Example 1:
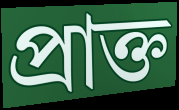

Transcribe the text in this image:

প্রাক্ত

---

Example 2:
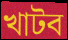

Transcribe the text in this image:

খাটব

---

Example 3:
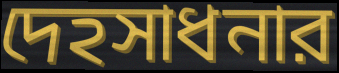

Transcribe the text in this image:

দেহসাধনার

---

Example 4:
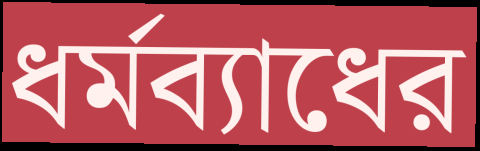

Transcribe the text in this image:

ধর্মব্যাধের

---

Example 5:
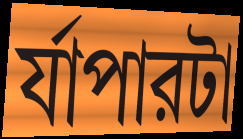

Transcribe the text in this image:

র্যাপারটা